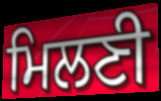
ਮਿਲਣੀ